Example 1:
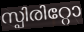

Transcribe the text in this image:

സ്പിരിറ്റോ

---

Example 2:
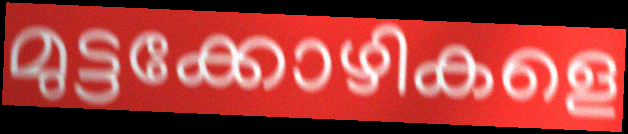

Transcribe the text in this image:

മുട്ടക്കോഴികളെ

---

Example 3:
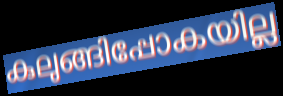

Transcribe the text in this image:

കുലുങ്ങിപ്പോകയില്ല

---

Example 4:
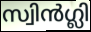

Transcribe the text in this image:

സ്വിൻഗ്ലി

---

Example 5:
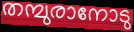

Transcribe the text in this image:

തമ്പുരാനോടു